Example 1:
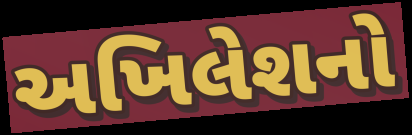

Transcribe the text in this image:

અખિલેશનો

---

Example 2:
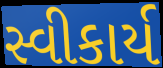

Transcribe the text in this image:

સ્વીકાર્ય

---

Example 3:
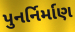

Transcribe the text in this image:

પુનર્નિર્માણ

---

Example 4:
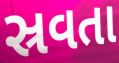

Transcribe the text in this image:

સ્રવતા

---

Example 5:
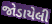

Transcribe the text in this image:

જોડાયેલી